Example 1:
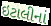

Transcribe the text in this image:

ઇટાલીનાં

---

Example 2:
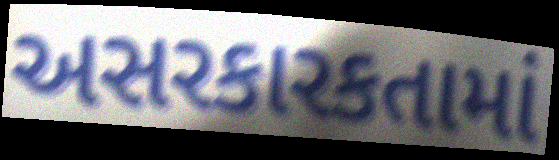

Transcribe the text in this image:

અસરકારકતામાં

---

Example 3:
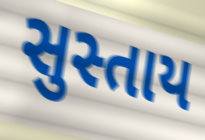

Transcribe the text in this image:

સુસ્તાય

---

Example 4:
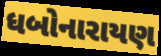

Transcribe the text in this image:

ધબોનારાયણ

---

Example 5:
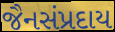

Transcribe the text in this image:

જૈનસંપ્રદાય